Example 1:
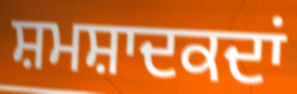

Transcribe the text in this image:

ਸ਼ਮਸ਼ਾਦਕਦਾਂ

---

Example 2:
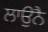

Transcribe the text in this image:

ਲਾਉਨੈ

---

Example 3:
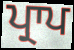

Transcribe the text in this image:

ਪ੍ਰਾਪ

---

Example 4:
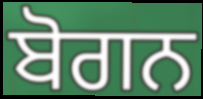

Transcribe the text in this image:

ਬੋਗਨ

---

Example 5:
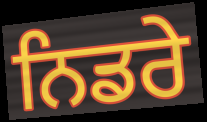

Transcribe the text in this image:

ਨਿਡਰੇ